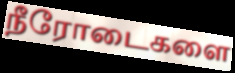
நீரோடைகளை